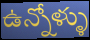
ఉన్నోళ్ళు